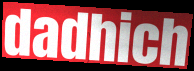
dadhich